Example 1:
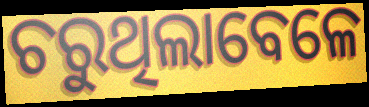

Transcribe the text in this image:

ଚରୁଥିଲାବେଳେ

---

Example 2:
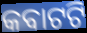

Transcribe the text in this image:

କବାଟଟି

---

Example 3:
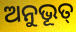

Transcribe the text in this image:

ଅନୁଭୂତ୍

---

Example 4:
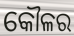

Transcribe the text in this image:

କୌଳର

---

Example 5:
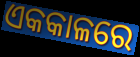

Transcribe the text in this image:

ଏକକାଳରେ